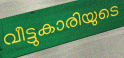
വീട്ടുകാരിയുടെ